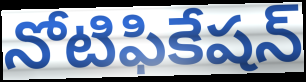
నోటిఫికేషన్